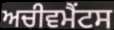
ਅਚੀਵਮੈਂਟਸ